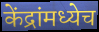
केंद्रांमध्येच